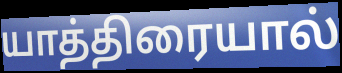
யாத்திரையால்